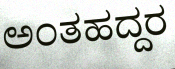
ಅಂತಹದ್ದರ